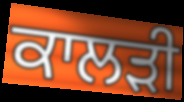
ਕਾਲੜੀ